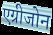
एग्रीजोन